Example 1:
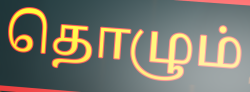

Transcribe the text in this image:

தொழும்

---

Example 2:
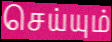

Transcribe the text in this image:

செய்யும்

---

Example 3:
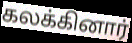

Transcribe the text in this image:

கலக்கினார்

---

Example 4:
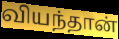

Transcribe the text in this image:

வியந்தான்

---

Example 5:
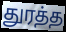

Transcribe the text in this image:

துரத்த